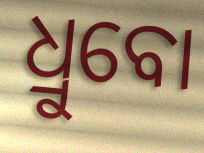
ଧ୍ରୁବୋ